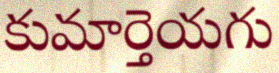
కుమార్తెయగు